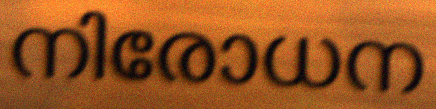
നിരോധന